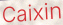
Caixin